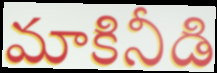
మాకినీడి